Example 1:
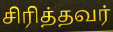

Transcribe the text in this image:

சிரித்தவர்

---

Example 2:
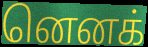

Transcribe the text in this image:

னெனக்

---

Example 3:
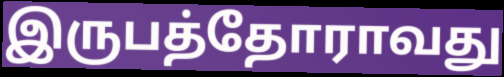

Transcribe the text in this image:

இருபத்தோராவது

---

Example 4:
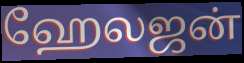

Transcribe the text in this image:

ஹேலஜன்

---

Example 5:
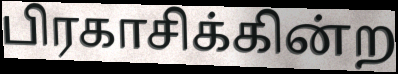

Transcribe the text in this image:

பிரகாசிக்கின்ற